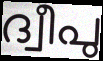
ദ്വീപു